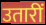
उतारीं